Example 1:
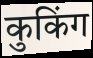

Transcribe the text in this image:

कुकिंग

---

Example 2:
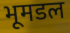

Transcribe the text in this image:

भूमडल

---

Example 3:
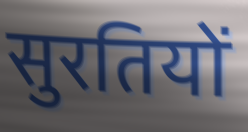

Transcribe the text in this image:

सुरतियों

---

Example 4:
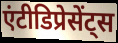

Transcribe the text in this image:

एंटीडिप्रेसेंट्स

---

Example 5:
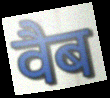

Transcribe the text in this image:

वैब